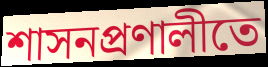
শাসনপ্রণালীতে